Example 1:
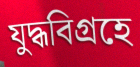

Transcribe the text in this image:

যুদ্ধবিগ্রহে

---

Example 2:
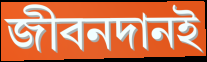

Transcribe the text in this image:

জীবনদানই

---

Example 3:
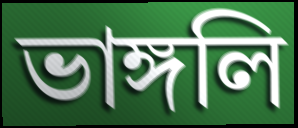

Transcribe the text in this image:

ভাঙ্গলি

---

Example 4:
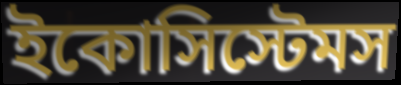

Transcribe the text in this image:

ইকোসিস্টেমস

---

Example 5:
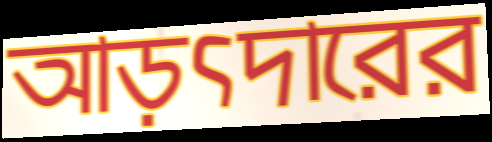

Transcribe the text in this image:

আড়ৎদারের